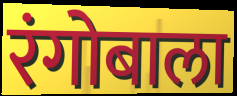
रंगोबाला